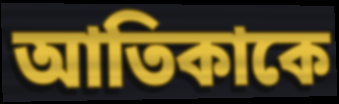
আতিকাকে